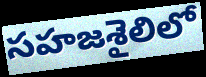
సహజశైలిలో